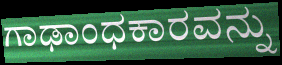
ಗಾಢಾಂಧಕಾರವನ್ನು